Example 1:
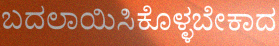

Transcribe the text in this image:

ಬದಲಾಯಿಸಿಕೊಳ್ಳಬೇಕಾದ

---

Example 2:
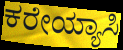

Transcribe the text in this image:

ಕರೇಯ್ಯಾಸಿ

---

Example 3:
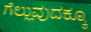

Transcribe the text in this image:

ಗೆಲ್ಲುವುದಕ್ಕೂ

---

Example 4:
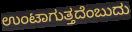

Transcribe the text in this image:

ಉಂಟಾಗುತ್ತದೆಂಬುದು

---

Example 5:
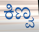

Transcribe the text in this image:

ಕಿಣ್ವ